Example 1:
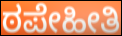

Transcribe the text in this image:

ಠಪೇಹೀತಿ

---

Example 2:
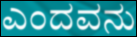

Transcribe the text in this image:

ಎಂದವನು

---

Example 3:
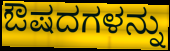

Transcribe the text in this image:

ಔಷದಗಳನ್ನು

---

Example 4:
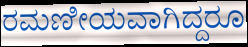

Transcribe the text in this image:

ರಮಣೀಯವಾಗಿದ್ದರೂ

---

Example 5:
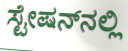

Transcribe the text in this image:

ಸ್ಟೇಷನ್‌ನಲ್ಲಿ